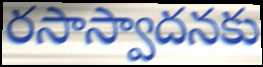
రసాస్వాదనకు